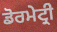
ਡੋਰਮੇਟ੍ਰੀ